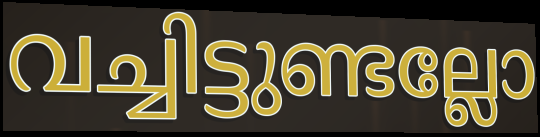
വച്ചിട്ടുണ്ടല്ലോ